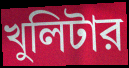
খুলিটার